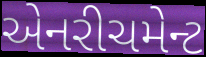
એનરીચમેન્ટ